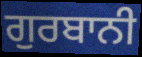
ਗੁਰਬਾਨੀ